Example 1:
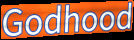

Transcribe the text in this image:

Godhood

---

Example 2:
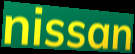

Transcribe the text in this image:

nissan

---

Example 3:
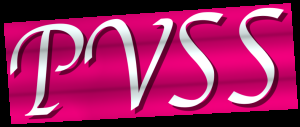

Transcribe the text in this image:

PVSS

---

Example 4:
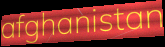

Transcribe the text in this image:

afghanistan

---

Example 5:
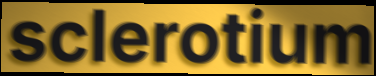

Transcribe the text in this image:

sclerotium